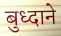
बुध्दाने